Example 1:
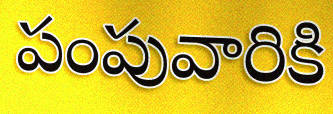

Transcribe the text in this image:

పంపువారికి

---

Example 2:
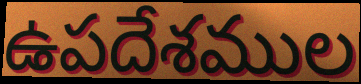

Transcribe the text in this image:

ఉపదేశముల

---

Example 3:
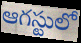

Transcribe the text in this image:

ఆగస్టులో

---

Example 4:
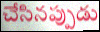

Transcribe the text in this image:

చేసినప్పుడు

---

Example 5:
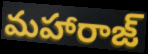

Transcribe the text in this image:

మహారాజ్